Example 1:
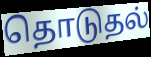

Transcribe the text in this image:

தொடுதல்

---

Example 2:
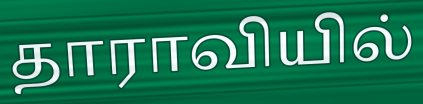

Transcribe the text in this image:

தாராவியில்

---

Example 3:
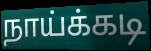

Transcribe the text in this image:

நாய்க்கடி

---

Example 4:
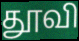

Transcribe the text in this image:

தூவி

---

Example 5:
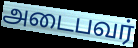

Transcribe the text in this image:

அடைபவர்